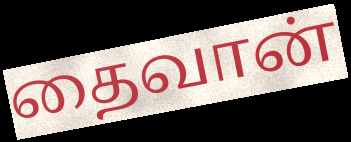
தைவான்